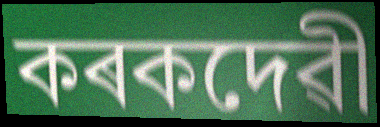
কৰকদেৱী